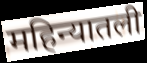
महिन्यातली